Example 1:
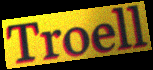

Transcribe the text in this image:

Troell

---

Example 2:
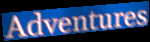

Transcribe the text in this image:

Adventures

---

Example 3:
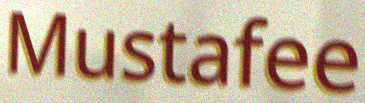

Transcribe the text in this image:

Mustafee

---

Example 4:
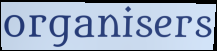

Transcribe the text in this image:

organisers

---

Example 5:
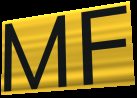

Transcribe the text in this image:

MF